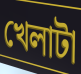
খেলাটা